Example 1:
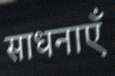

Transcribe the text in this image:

साधनाएँ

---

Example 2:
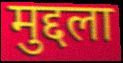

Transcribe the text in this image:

मुद्दला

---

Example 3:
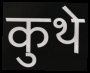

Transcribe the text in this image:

कुथे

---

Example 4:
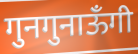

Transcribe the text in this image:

गुनगुनाऊँगी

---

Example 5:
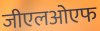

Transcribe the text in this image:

जीएलओएफ